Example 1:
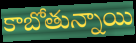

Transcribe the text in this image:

కాబోతున్నాయి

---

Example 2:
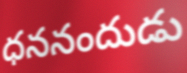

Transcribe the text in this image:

ధననందుడు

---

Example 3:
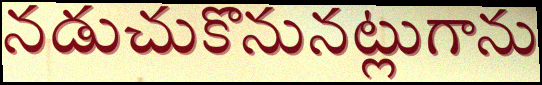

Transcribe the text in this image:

నడుచుకొనునట్లుగాను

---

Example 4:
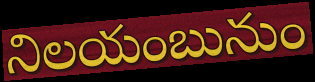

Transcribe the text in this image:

నిలయంబునుం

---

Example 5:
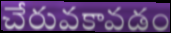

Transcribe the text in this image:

చేరువకావడం